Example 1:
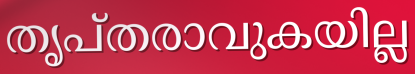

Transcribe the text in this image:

തൃപ്തരാവുകയില്ല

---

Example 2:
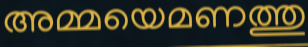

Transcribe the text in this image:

അമ്മയെമണത്തു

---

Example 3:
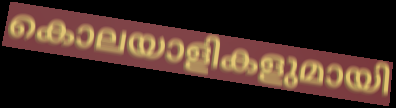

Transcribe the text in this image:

കൊലയാളികളുമായി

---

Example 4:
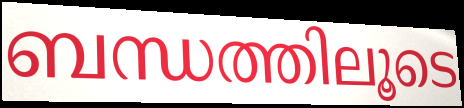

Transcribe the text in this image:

ബന്ധത്തിലൂടെ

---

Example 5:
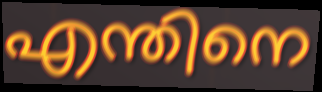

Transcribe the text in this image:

എന്തിനെ